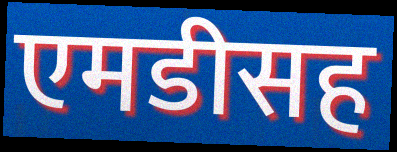
एमडीसह